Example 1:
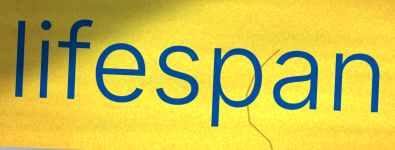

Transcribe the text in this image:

lifespan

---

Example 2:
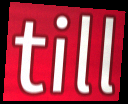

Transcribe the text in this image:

till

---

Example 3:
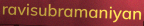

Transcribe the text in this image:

ravisubramaniyan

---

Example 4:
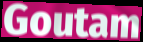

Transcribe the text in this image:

Goutam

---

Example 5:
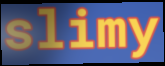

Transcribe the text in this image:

slimy